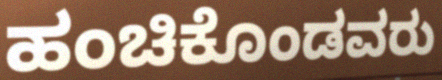
ಹಂಚಿಕೊಂಡವರು